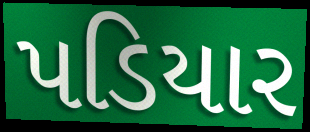
પડિયાર